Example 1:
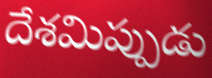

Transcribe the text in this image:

దేశమిప్పుడు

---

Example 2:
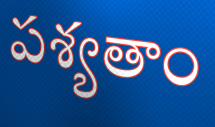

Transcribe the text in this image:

పశ్యతాం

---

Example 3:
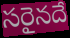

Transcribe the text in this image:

సరైనదే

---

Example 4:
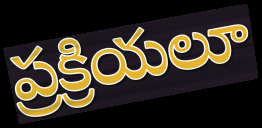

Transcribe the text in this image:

ప్రక్రియలూ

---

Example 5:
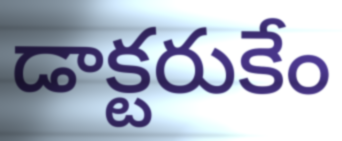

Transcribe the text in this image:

డాక్టరుకేం